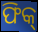
ଫିକ୍